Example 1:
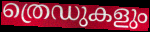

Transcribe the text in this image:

ത്രെഡുകളും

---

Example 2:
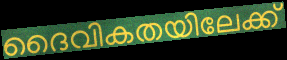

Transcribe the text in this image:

ദൈവികതയിലേക്ക്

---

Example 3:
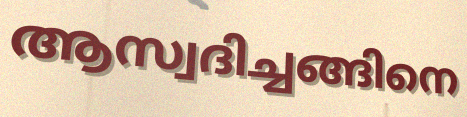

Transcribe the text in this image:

ആസ്വദിച്ചങ്ങിനെ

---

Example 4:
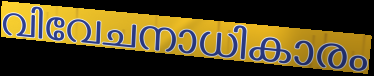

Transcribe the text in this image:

വിവേചനാധികാരം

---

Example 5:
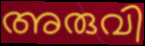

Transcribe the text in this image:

അരുവി